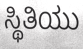
ಸ್ಥಿತಿಯು